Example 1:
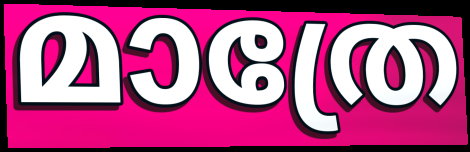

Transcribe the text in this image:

മാത്രേ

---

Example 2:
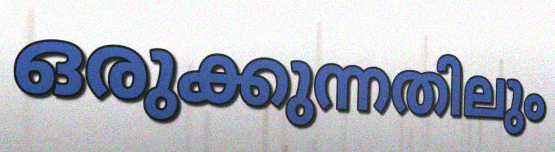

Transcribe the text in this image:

ഒരുക്കുന്നതിലും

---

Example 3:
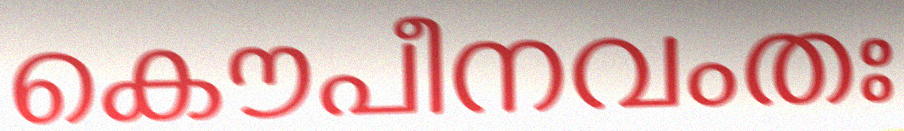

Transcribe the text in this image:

കൌപീനവംതഃ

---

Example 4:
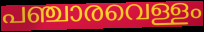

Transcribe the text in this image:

പഞ്ചാരവെള്ളം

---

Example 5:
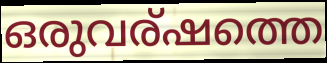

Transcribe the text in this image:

ഒരുവര്ഷത്തെ